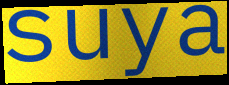
suya